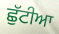
ਛੁੱਟੀਆ